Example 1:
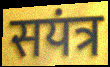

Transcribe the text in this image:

सयंत्र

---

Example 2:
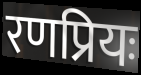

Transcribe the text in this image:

रणप्रियः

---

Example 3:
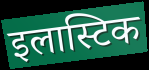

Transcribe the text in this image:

इलास्टिक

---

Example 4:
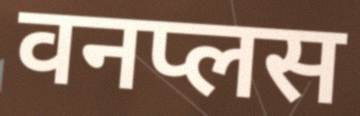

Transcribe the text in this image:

वनप्लस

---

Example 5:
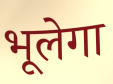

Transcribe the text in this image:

भूलेगा